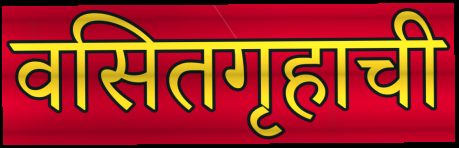
वसितगृहाची